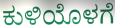
ಕುಳಿಯೊಳಗೆ